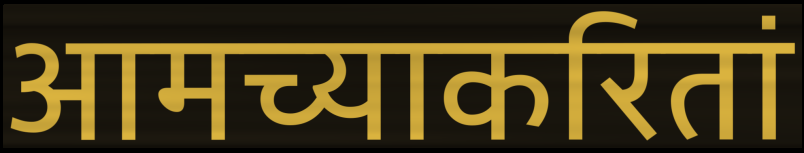
आमच्याकरितां